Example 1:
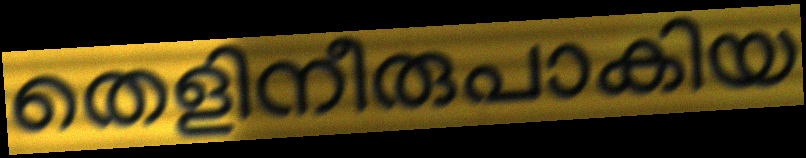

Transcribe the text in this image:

തെളിനീരുപാകിയ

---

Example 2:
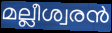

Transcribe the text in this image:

മല്ലീശ്വരൻ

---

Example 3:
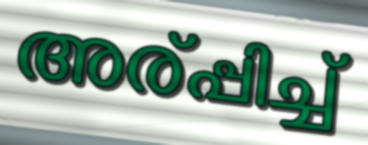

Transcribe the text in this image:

അര്പ്പിച്ച്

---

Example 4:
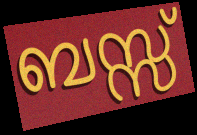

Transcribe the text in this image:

ബസ്സ്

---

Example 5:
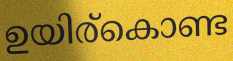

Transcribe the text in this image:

ഉയിര്കൊണ്ട